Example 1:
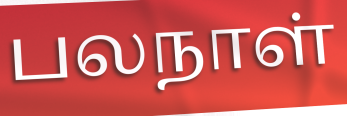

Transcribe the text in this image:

பலநாள்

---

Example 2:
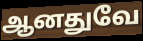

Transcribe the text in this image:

ஆனதுவே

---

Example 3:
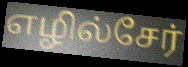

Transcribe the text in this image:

எழில்சேர்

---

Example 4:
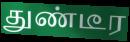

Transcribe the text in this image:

துண்டீர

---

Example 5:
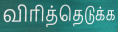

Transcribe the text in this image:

விரித்தெடுக்க